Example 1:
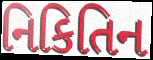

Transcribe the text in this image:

નિકિતિન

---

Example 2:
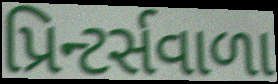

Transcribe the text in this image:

પ્રિન્ટર્સવાળા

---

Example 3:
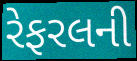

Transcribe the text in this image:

રેફરલની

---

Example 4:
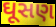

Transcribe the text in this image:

ઘૂસણ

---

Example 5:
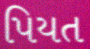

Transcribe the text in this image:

પિયત